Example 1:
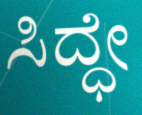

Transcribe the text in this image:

ಸಿದ್ಧೇ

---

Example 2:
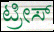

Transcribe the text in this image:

ಟ್ರೀಸ್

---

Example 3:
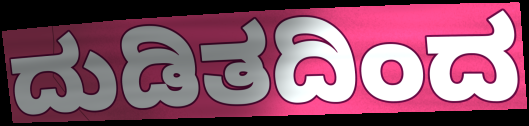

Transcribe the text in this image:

ದುಡಿತದಿಂದ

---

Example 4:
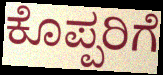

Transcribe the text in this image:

ಕೊಪ್ಪರಿಗೆ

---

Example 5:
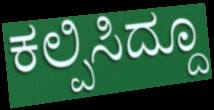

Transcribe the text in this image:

ಕಲ್ಪಿಸಿದ್ದೂ